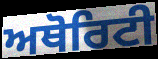
ਅਥੋਰਿਟੀ